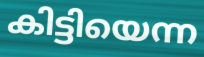
കിട്ടിയെന്ന